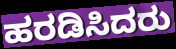
ಹರಡಿಸಿದರು